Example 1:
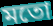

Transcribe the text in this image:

মতো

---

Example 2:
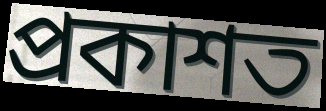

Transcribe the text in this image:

প্ৰকাশত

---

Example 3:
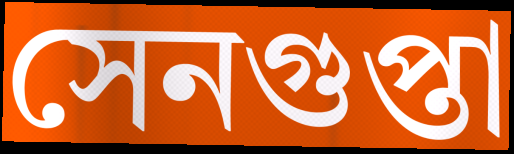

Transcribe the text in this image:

সেনগুপ্তা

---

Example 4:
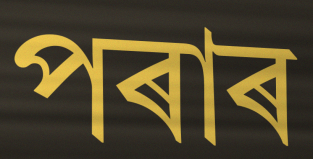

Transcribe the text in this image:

পৰাৰ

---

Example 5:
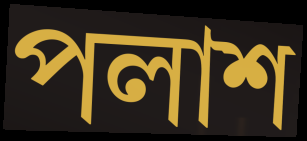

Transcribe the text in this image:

পলাশ